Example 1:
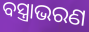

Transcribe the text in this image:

ବସ୍ତ୍ରାଭରଣ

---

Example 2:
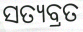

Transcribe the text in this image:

ସତ୍ୟବ୍ରତ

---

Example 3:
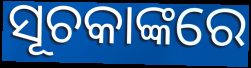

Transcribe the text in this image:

ସୂଚକାଙ୍କରେ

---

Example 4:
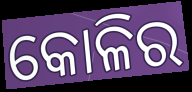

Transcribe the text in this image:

କୋଳିର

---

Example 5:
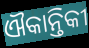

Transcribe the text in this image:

ଐକାନ୍ତିକୀ